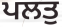
ਪਲਤੁ